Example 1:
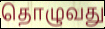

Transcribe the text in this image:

தொழுவது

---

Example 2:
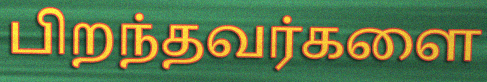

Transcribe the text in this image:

பிறந்தவர்களை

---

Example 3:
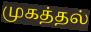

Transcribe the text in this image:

முகத்தல்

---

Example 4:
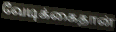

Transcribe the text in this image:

வேடிக்கைதான்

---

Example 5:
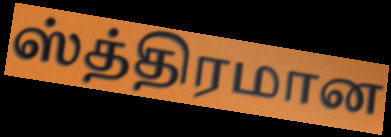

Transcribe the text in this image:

ஸ்த்திரமான